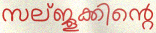
സല്ജൂക്കിന്റെ